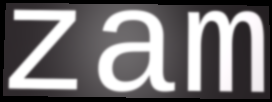
zam